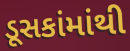
ડૂસકાંમાંથી